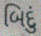
બિદું